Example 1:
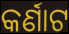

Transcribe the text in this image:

କର୍ଣାଟ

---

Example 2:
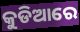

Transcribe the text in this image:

କୁଡିଆରେ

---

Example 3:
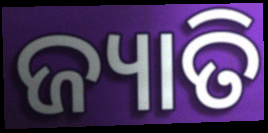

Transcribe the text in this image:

ଜ୍ୟାତି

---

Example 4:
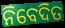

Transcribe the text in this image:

ନିବେଦିତ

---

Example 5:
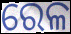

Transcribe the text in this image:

ରେଳ